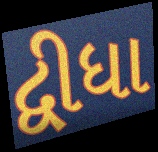
દ્વીધા